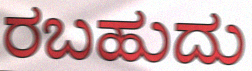
ರಬಹುದು